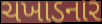
ચખાડનાર